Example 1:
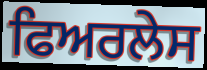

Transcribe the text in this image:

ਫਿਅਰਲੇਸ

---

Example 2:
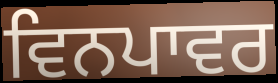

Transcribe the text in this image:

ਵਿਨਪਾਵਰ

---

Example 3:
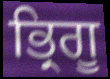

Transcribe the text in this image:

ਭ੍ਰਿਗੂ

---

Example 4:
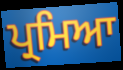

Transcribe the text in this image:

ਪ੍ਰਮਿਆ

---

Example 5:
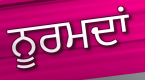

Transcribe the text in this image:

ਨੂਰਮਦਾਂ